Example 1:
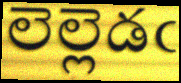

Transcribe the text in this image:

లెల్లెడఁ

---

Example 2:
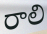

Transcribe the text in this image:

రాలి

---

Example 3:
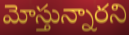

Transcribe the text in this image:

మోస్తున్నారని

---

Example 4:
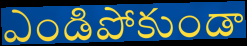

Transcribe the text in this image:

ఎండిపోకుండా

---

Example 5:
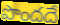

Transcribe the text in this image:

పొందదే